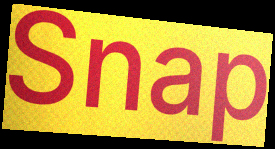
Snap